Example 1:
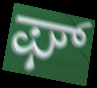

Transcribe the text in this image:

ಘ್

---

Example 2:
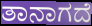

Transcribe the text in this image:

ತಾನಾಗದೆ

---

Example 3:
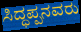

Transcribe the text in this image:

ಸಿದ್ಧಪ್ಪನವರು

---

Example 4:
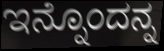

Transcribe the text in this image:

ಇನ್ನೊಂದನ್ನ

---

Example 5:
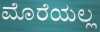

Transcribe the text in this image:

ಮೊರೆಯಲ್ಲ